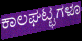
ಕಾಲಘಟ್ಟಗಳೂ